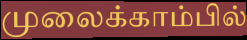
முலைக்காம்பில்